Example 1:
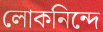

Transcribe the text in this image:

লোকনিন্দে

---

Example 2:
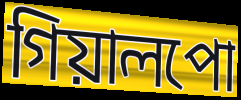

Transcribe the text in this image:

গিয়ালপো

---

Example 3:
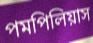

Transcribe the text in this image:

পমপিলিয়াস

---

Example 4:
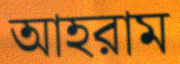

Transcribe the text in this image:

আহরাম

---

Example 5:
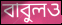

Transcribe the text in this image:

বাবুলও